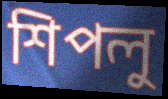
শিপলু